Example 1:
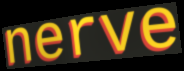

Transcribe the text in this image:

nerve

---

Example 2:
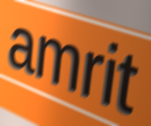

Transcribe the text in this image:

amrit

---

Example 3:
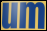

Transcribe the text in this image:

um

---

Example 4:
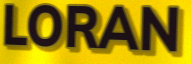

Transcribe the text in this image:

LORAN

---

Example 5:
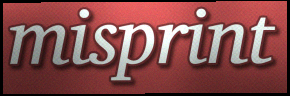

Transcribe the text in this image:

misprint